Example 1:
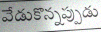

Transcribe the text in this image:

వేడుకొన్నప్పుడు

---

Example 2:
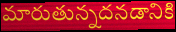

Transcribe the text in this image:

మారుతున్నదనడానికి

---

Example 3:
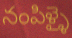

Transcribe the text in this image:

నంపిళ్ళై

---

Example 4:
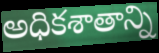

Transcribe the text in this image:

అధికశాతాన్ని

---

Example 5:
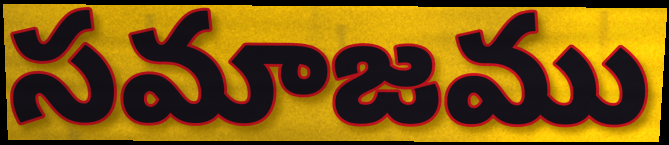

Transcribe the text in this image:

సమాజము